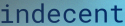
indecent